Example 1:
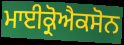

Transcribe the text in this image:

ਮਾਈਕ੍ਰੋਐਕਸੋਨ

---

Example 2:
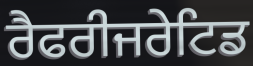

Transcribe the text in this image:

ਰੈਫਰੀਜਰੇਟਿਡ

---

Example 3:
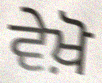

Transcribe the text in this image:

ਵੇਖ਼ੋ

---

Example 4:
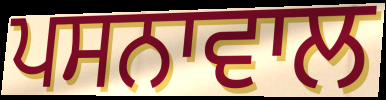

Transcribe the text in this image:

ਪਸਨਾਵਾਲ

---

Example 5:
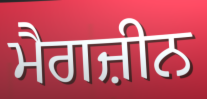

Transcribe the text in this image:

ਮੈਗਜ਼ੀਨ